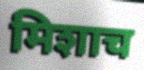
मिशाच